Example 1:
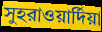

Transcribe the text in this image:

সুহরাওয়ার্দিয়া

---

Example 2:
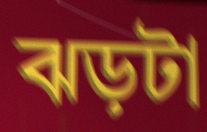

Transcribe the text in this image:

ঝড়টা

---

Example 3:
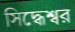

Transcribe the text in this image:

সিদ্ধেশ্বর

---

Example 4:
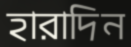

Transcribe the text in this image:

হারাদিন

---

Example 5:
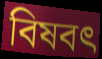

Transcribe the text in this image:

বিষবৎ